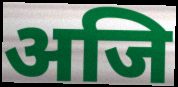
अजि